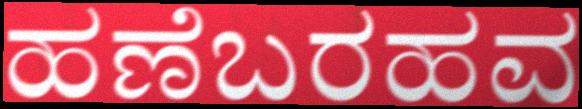
ಹಣೆಬರಹವ